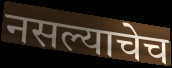
नसल्याचेच